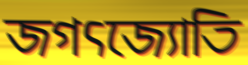
জগৎজ্যোতি